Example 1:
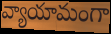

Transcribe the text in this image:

వ్యాయామంగా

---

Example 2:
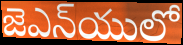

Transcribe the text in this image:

జెఎన్‌యులో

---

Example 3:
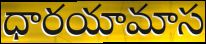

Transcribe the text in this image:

ధారయామాస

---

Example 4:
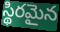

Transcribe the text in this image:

స్థిరమైన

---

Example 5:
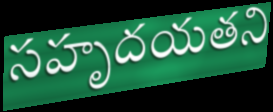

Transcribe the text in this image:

సహృదయతని